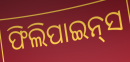
ଫିଲିପାଇନ୍‍ସ